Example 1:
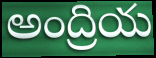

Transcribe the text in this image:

అంద్రియ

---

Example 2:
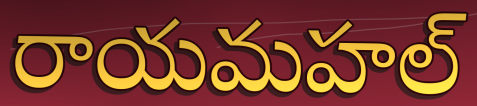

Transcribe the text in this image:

రాయమహల్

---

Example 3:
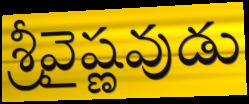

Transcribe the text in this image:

శ్రీవైష్ణవుడు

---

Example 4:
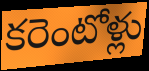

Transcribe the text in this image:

కరెంటోళ్లు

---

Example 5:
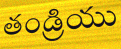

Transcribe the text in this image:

తండ్రియు